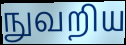
நுவறிய